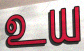
உய